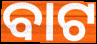
ବାଟ